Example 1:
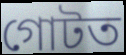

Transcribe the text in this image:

গোটত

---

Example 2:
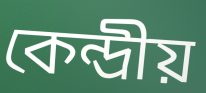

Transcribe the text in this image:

কেন্দ্ৰীয়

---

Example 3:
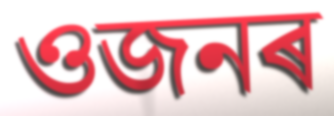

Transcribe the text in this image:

ওজনৰ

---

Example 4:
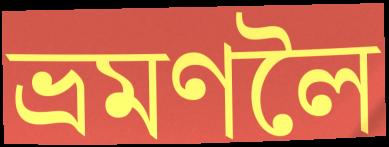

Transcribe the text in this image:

ভ্ৰমণলৈ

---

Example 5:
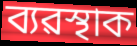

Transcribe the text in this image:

ব্যৱস্থাক